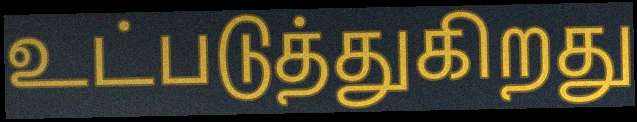
உட்படுத்துகிறது